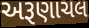
અરૂણાચલ